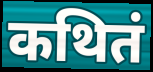
कथितं